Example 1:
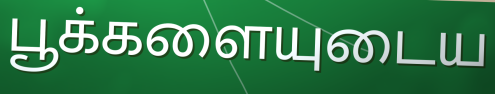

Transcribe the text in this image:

பூக்களையுடைய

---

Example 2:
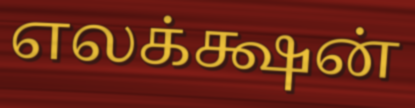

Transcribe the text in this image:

எலக்க்ஷன்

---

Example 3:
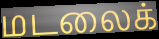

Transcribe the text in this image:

மடலைக்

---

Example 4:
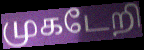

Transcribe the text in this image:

முகடேறி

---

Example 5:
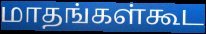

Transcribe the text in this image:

மாதங்கள்கூட